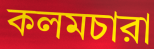
কলমচারা